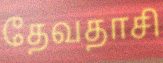
தேவதாசி